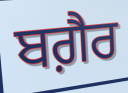
ਬਗ਼ੈਰ